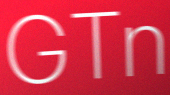
GTn